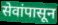
सेवांपासून